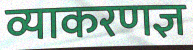
व्याकरणज्ञ